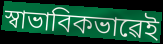
স্বাভাবিকভাৱেই